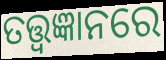
ତତ୍ତ୍ୱଜ୍ଞାନରେ